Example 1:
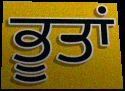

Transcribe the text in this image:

ਭੂਤਾਂ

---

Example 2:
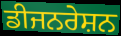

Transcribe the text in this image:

ਡੀਜਨਰੇਸ਼ਨ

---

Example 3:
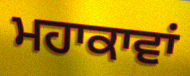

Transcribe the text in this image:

ਮਹਾਕਾਵਾਂ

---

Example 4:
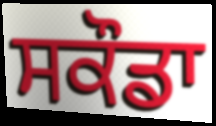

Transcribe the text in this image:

ਸਕੌਡਾ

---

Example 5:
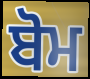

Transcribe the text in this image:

ਬੋਮ